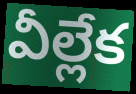
వీల్లేక